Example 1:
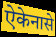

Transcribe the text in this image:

ऐकेनासे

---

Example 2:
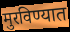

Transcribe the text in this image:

मुरविण्यात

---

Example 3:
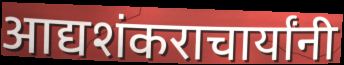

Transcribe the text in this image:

आद्यशंकराचार्यांनी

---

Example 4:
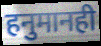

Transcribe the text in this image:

हनुमानही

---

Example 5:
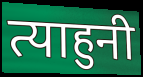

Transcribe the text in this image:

त्याहुनी